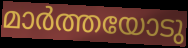
മാർത്തയോടു